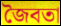
জৈবতা